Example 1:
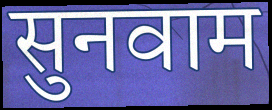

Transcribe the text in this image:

सुनवाम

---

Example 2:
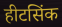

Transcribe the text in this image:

हीटसिंक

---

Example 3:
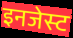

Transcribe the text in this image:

इनजेस्ट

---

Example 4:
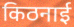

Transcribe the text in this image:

किठनाई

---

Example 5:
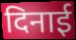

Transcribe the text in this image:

दिनाई